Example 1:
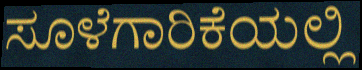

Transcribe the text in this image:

ಸೂಳೆಗಾರಿಕೆಯಲ್ಲಿ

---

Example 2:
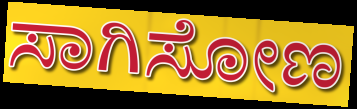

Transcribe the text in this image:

ಸಾಗಿಸೋಣ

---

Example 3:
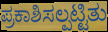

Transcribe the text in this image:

ಪ್ರಕಾಶಿಸಲ್ಪಟ್ಟಿತು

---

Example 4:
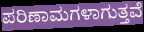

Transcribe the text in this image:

ಪರಿಣಾಮಗಳಾಗುತ್ತವೆ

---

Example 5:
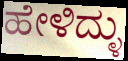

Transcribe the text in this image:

ಹೇಳಿದ್ಳು